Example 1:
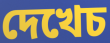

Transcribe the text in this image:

দেখেচ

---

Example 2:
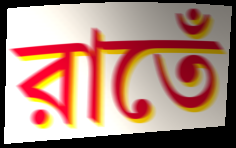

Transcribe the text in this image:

রাতেঁ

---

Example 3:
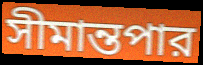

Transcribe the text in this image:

সীমান্তপার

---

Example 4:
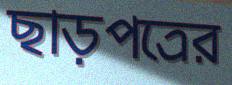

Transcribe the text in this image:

ছাড়পত্রের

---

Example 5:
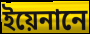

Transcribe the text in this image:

ইয়েনানে